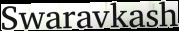
Swaravkash